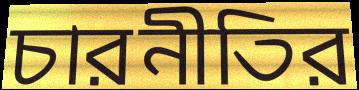
চারনীতির